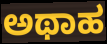
ಅಥಾಹ